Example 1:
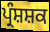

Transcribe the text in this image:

ਪ੍ਰੰਸ਼ਸ਼ਕ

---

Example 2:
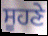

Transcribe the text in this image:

ਸੂਹਣੇ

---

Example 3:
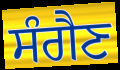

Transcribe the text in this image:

ਸੰਗੈਣ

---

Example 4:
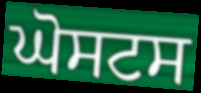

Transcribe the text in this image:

ਘੋਸਟਸ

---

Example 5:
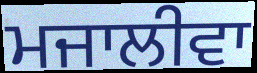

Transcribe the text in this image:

ਮਜਾਲੀਵਾ